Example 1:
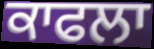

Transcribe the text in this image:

ਕਾਫਲਾ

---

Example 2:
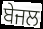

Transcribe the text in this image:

ਬੇਜਲ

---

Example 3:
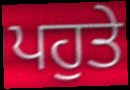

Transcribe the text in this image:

ਪਹੁਤੇ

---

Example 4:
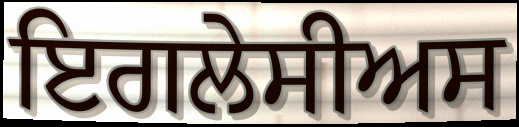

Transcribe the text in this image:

ਇਗਲੇਸੀਅਸ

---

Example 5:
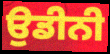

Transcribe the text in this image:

ਉਡੀਨੀ